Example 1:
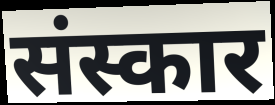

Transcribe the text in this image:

संस्कार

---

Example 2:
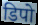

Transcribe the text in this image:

डिपो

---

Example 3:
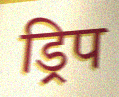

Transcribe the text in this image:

ड्रिप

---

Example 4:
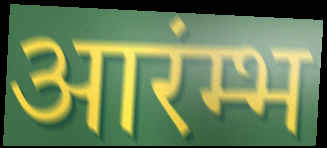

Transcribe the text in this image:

आरंम्भ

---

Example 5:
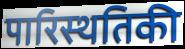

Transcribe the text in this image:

पारिस्थतिकी